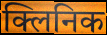
क्लिनिक